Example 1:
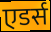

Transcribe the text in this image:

एडर्स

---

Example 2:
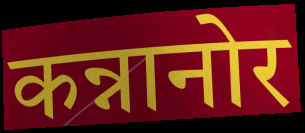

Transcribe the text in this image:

कन्नानोर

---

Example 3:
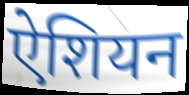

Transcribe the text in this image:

ऐशियन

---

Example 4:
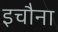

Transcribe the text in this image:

इचौना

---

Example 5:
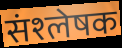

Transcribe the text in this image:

संश्लेषक